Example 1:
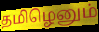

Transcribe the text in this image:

தமிழெனும்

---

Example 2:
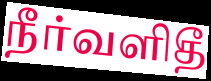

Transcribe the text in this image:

நீர்வளிதீ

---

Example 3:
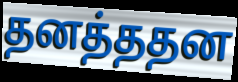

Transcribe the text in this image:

தனத்ததன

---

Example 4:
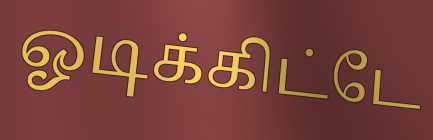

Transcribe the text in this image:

ஓடிக்கிட்டே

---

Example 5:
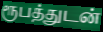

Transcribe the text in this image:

ரூபத்துடன்